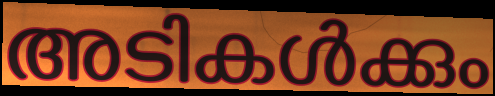
അടികൾക്കും